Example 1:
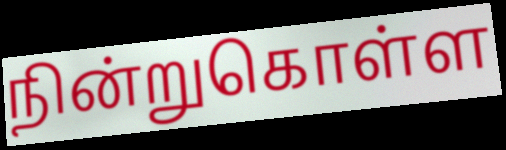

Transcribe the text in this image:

நின்றுகொள்ள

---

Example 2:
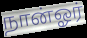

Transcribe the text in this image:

நான்ஓர்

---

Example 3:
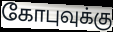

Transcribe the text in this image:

கோபுவுக்கு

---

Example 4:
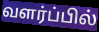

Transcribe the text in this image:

வளர்ப்பில்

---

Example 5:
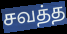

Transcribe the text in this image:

சவத்த